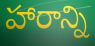
హారాన్ని